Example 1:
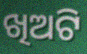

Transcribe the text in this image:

ଖିଅଟି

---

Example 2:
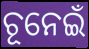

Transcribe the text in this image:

ଚୂନେଇଁ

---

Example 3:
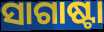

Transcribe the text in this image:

ସାଗାଷ୍ଟା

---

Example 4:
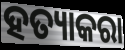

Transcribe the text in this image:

ହତ୍ୟାକରା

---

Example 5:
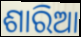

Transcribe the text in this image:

ଶାରିଆ